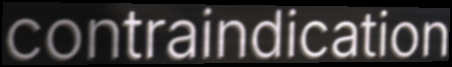
contraindication